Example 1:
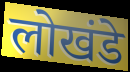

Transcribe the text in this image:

लोखंडे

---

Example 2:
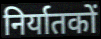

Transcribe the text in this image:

निर्यातकों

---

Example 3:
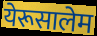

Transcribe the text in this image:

येरूसालेम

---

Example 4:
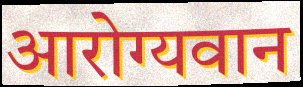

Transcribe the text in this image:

आरोग्यवान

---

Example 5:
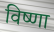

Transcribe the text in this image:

विष्णा